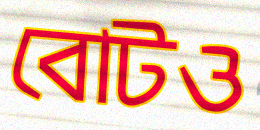
বোটও